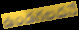
ఉండగలదనే